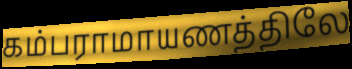
கம்பராமாயணத்திலே